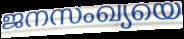
ജനസംഖ്യയെ